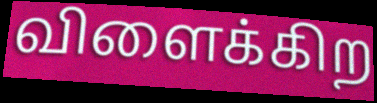
விளைக்கிற